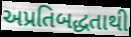
અપ્રતિબદ્ધતાથી